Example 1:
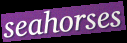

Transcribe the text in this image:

seahorses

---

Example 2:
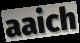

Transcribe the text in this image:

aaich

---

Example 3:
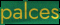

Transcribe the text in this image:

palces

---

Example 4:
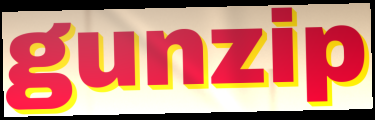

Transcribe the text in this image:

gunzip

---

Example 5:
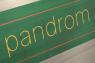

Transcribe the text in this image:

pandrom